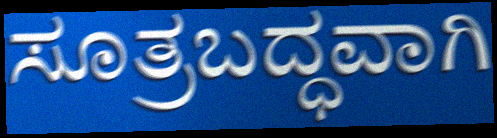
ಸೂತ್ರಬದ್ಧವಾಗಿ